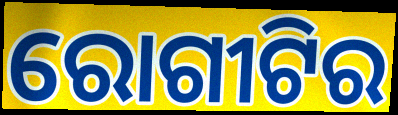
ରୋଗୀଟିର